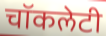
चॉकलेटी